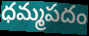
ధమ్మపదం